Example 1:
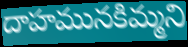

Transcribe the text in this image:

దాహమునకిమ్మని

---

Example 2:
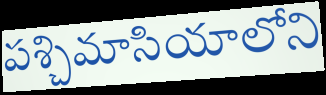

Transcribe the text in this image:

పశ్చిమాసియాలోని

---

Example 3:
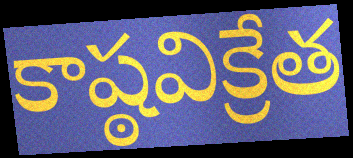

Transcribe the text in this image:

కాష్ఠవిక్రేత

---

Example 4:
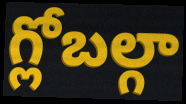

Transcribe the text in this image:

గ్లోబల్గా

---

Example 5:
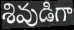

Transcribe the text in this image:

శివుడిగా